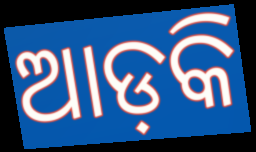
ଆଡ଼କି